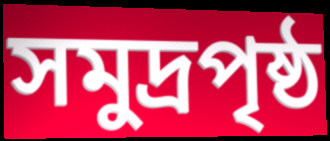
সমুদ্রপৃষ্ঠ